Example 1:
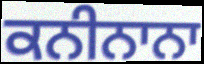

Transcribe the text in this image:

ਕਨੀਨਾਨਾ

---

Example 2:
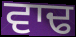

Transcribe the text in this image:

ਵਾਢ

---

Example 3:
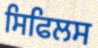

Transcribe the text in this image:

ਸਿਫਿਲਸ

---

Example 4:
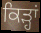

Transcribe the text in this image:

ਕਿੜ੍ਹਾਂ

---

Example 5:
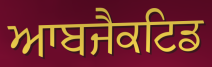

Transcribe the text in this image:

ਆਬਜੈਕਟਿਡ